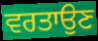
ਵਰਤਾਉਣ